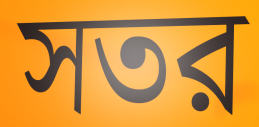
সতর